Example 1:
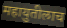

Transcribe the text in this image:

महायुतीलाच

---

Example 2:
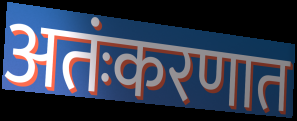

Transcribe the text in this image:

अतंःकरणात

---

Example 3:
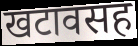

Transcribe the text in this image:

खटावसह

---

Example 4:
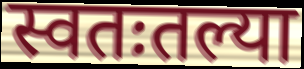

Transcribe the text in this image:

स्वतःतल्या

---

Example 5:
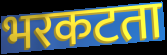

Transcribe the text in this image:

भरकटता